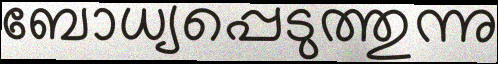
ബോധ്യപ്പെടുത്തുന്നു